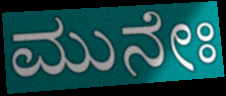
ಮುನೇಃ